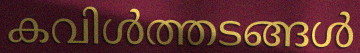
കവിൾത്തടങ്ങൾ